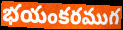
భయంకరముగ